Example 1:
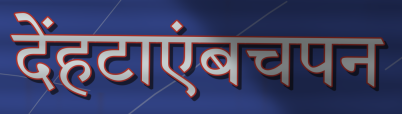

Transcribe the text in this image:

देंहटाएंबचपन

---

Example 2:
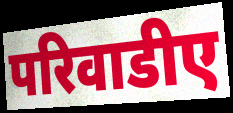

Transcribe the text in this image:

परिवाडीए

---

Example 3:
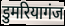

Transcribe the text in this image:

डुमरियागंज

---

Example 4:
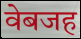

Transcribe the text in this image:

वेबजह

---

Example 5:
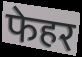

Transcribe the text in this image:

फेहर